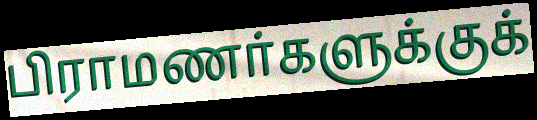
பிராமணர்களுக்குக்